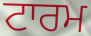
ਟਾਰਮ